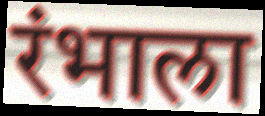
रंभाला